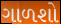
ગાળશો